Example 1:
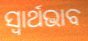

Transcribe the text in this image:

ସ୍ଵାର୍ଥଭାବ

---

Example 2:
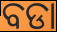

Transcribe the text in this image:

ବଡା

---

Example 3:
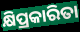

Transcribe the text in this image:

କ୍ଷିପ୍ରକାରିତା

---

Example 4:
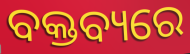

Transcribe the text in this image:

ବକ୍ତବ୍ୟରେ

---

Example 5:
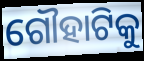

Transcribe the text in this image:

ଗୌହାଟିକୁ